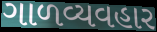
ગાળવ્યવહાર